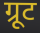
ग्रूट